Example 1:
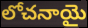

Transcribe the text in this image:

లోచనాయై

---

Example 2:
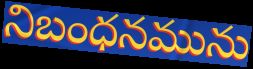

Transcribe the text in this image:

నిబంధనమును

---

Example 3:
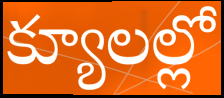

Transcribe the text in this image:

క్యూలల్లో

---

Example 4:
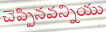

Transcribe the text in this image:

చెప్పినవన్నియు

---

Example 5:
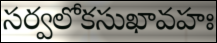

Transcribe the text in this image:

సర్వలోకసుఖావహః